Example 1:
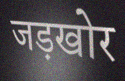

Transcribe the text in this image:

जड़खोर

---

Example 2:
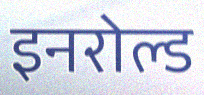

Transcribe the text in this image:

इनरोल्ड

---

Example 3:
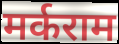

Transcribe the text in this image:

मर्कराम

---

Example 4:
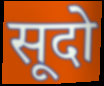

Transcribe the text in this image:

सूदो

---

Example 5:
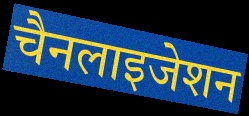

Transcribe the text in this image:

चैनलाइजेशन